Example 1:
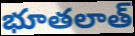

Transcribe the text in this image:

భూతలాత్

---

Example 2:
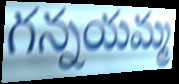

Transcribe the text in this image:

గన్నయమ్మ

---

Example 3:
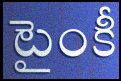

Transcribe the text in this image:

టైంకీ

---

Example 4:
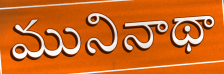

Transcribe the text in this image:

మునినాథా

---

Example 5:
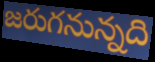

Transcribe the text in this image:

జరుగనున్నది